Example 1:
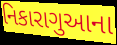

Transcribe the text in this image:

નિકારાગુઆના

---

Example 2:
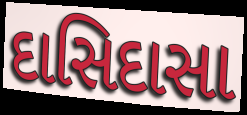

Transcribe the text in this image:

દાસિદાસા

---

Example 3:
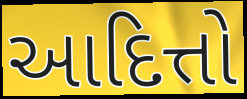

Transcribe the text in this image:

આદિત્તો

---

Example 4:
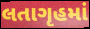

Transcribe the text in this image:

લતાગૃહમાં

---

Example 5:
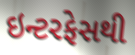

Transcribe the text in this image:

ઇન્ટરફેસથી